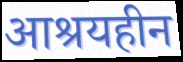
आश्रयहीन